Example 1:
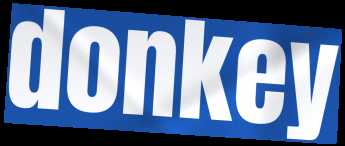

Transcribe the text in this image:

donkey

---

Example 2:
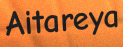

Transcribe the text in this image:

Aitareya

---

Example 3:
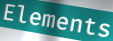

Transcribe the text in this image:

Elements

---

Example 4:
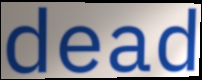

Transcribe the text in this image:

dead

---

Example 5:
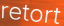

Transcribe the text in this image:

retort